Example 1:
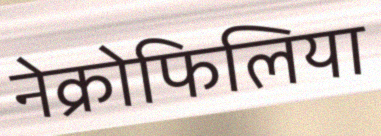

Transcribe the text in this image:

नेक्रोफिलिया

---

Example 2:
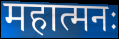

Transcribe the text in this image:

महात्मनः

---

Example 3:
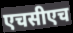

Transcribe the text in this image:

एचसीएच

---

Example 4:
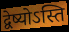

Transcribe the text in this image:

द्वेष्योऽस्ति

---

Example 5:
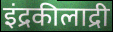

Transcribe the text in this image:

इंद्रकीलाद्री